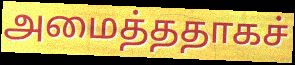
அமைத்ததாகச்